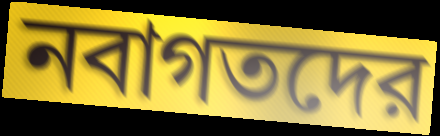
নবাগতদের